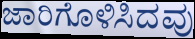
ಜಾರಿಗೊಳಿಸಿದವು